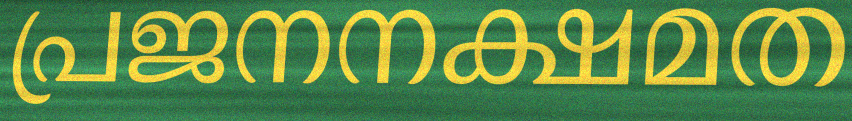
പ്രജനനക്ഷമത